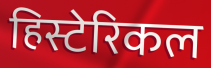
हिस्टेरिकल